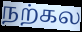
நற்கல